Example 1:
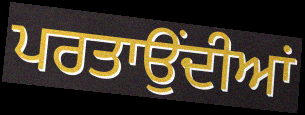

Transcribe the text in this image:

ਪਰਤਾਉਂਦੀਆਂ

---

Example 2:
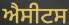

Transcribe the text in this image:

ਐਸੀਟਸ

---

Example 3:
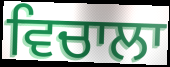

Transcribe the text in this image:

ਵਿਚਾਲਾ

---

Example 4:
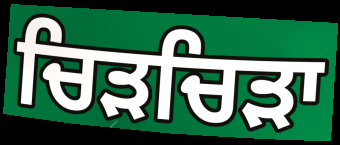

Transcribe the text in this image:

ਚਿੜਚਿੜਾ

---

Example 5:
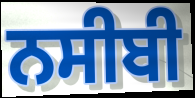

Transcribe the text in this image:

ਨਸੀਬੀ